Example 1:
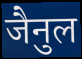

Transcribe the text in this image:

जैनुल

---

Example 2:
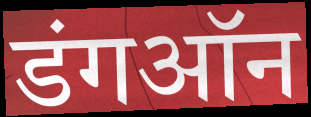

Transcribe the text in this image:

डंगऑन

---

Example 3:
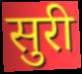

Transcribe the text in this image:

सुरी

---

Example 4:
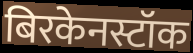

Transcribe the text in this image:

बिरकेनस्टॉक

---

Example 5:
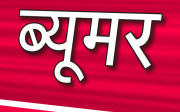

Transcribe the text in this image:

ब्यूमर